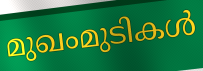
മുഖംമുടികൾ